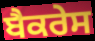
ਬੈਕਰੇਸ